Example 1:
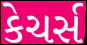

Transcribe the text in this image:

કેચર્સ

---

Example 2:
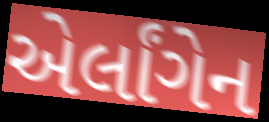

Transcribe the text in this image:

એર્લાંગેન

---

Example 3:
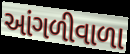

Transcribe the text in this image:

આંગળીવાળા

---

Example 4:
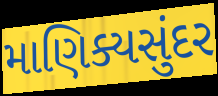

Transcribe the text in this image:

માણિક્યસુંદર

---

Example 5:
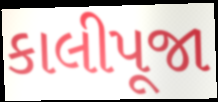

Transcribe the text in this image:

કાલીપૂજા